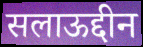
सलाऊद्दीन